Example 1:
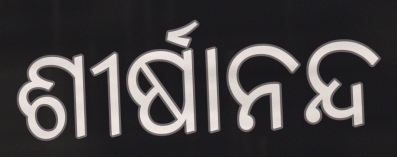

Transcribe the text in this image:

ଶୀର୍ଷାନନ୍ଦ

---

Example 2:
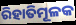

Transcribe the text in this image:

ରିହାତିମୂଳକ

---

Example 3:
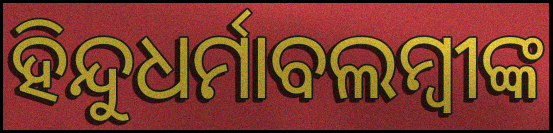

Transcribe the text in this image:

ହିନ୍ଦୁଧର୍ମାବଲମ୍ବୀଙ୍କ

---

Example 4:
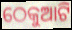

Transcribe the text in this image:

ଠେକୁଆଟି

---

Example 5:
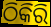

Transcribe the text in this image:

ଠିକିରି